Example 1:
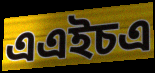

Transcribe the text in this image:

এএইচএ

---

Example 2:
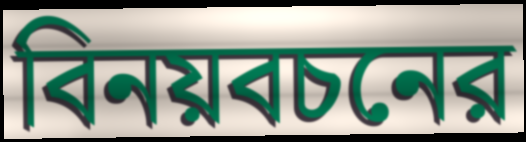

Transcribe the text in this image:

বিনয়বচনের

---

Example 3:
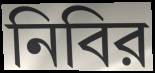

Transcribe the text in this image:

নিবির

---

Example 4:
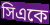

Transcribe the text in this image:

সিএকে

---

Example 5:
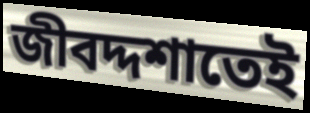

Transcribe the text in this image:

জীবদ্দশাতেই